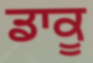
ਡਾਕੂ